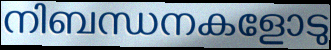
നിബന്ധനകളോടു